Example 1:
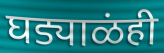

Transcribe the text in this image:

घड्याळंही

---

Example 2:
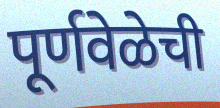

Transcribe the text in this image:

पूर्णवेळेची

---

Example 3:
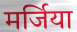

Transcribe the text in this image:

मर्जिया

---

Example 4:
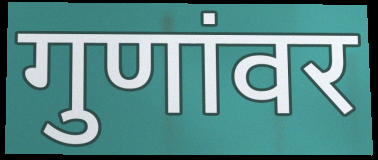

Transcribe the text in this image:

गुणांवर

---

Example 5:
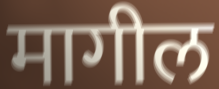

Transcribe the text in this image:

मागील